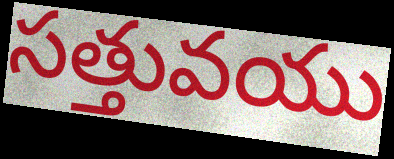
సత్తువయు